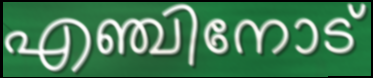
എഞ്ചിനോട്